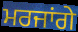
ਮਰਜਾਂਗੇ